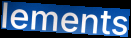
lements